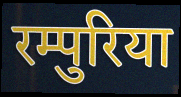
रम्पुरिया